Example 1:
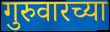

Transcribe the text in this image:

गुरुवारच्या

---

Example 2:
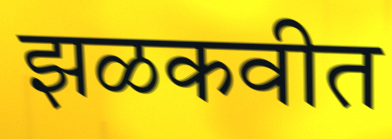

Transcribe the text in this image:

झळकवीत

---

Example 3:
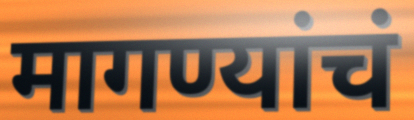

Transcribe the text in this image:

मागण्यांचं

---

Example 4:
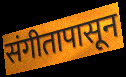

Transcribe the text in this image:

संगीतापासून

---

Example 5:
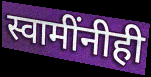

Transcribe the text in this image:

स्वामींनीही